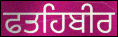
ਫਤਹਿਬੀਰ